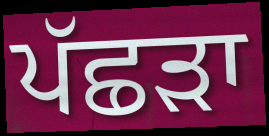
ਪੱਛੜਾ